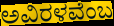
ಅವಿರಳವೆಂಬ